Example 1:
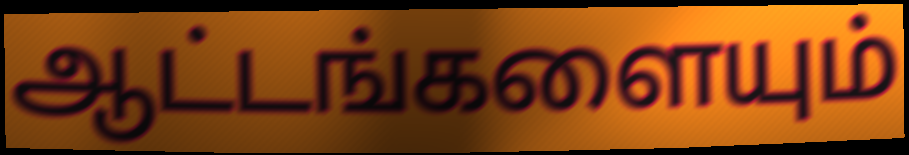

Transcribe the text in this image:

ஆட்டங்களையும்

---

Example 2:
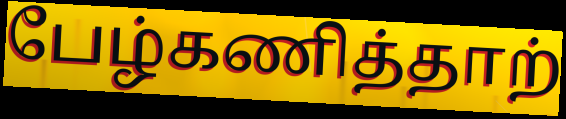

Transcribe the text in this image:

பேழ்கணித்தாற்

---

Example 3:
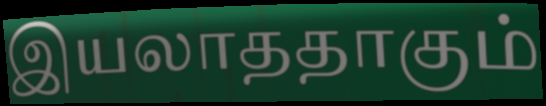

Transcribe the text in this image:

இயலாததாகும்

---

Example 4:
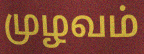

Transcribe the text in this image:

முழவம்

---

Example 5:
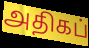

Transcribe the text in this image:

அதிகப்